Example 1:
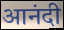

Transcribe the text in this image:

आनंदी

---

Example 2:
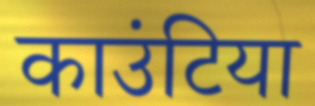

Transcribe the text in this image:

काउंटिया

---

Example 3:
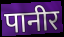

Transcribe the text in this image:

पानीर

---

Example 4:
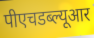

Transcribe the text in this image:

पीएचडब्ल्यूआर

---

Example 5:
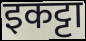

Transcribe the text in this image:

इकट्टा